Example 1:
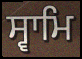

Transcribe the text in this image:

ਸ੍ਵਾਮਿ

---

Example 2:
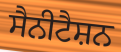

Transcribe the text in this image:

ਸੈਨੀਟੈਸ਼ਨ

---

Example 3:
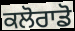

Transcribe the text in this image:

ਕਲੋਰਾਡੋ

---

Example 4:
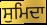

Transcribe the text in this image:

ਸੁਮਿਦਾ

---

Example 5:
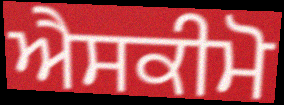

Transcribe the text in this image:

ਐਸਕੀਮੋ